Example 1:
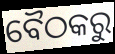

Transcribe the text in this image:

ବୈଠକରୁ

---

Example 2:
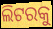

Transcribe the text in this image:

ଲିଟରକୁ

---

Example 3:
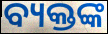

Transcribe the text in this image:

ବ୍ୟକ୍ତଙ୍କ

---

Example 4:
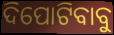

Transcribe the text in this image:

ଦିପୋଟିବାବୁ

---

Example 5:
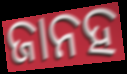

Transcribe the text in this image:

ଜାନହ